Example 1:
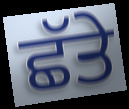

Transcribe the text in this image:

ਛੱਤੇ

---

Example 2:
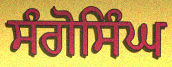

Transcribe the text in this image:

ਸੰਗੋਸਿੰਘ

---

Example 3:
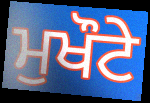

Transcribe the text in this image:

ਮੁਖੌਟੇ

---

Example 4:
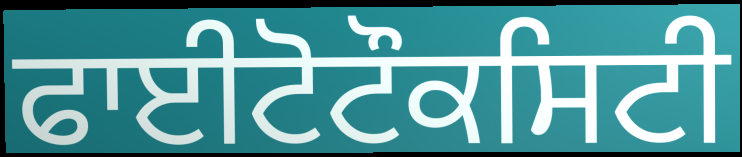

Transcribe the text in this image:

ਫਾਈਟੋਟੌਕਸਿਟੀ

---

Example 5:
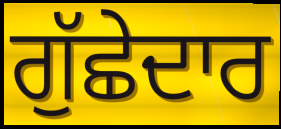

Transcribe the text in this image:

ਗੁੱਛੇਦਾਰ